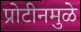
प्रोटीनमुळे